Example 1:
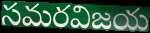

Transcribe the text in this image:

సమరవిజయ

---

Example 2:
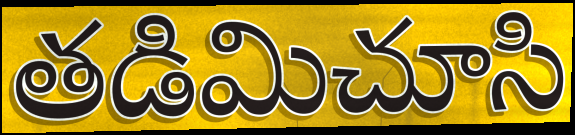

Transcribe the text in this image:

తడిమిచూసి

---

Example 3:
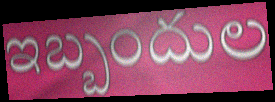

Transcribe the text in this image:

ఇబ్బందుల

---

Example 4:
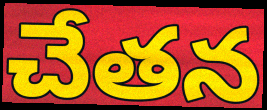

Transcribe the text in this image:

చేతన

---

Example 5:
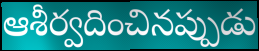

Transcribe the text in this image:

ఆశీర్వదించినప్పుడు